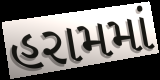
હરામમાં